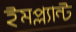
ইমপ্ল্যান্ট